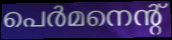
പെർമനെന്റ്